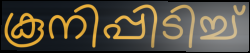
കൂനിപ്പിടിച്ച്